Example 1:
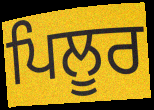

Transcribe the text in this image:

ਪਿਲੂਰ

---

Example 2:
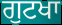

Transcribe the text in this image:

ਗੁਟਖਾ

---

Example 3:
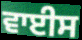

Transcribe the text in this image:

ਵਾਈਸ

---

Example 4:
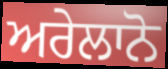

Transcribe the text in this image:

ਅਰੇਲਾਨੋ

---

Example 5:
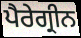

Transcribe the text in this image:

ਪੈਰੇਗ੍ਰੀਨ